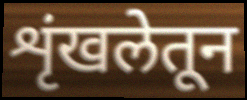
शृंखलेतून